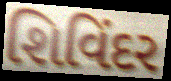
શિવિંદર